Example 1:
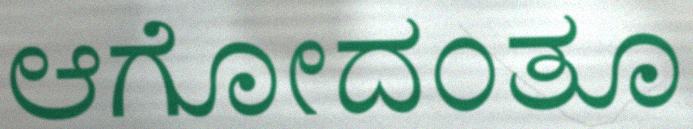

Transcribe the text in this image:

ಆಗೋದಂತೂ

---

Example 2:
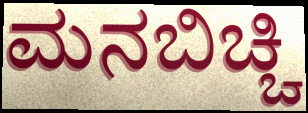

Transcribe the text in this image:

ಮನಬಿಚ್ಚಿ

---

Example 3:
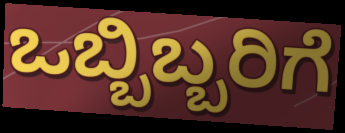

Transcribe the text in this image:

ಒಬ್ಬಿಬ್ಬರಿಗೆ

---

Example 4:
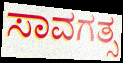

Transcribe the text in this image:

ಸಾವಗತ್ಸ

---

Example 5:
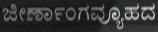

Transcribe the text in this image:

ಜೀರ್ಣಾಂಗವ್ಯೂಹದ